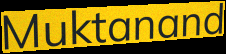
Muktanand